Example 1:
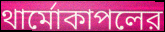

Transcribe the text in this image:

থার্মোকাপলের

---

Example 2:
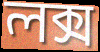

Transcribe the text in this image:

লক্স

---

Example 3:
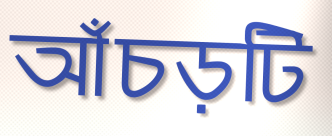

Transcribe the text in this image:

আঁচড়টি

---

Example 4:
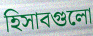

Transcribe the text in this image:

হিসাবগুলো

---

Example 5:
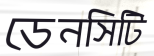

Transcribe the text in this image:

ডেনসিটি